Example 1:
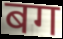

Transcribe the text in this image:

बग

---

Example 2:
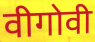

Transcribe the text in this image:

वीगोवी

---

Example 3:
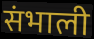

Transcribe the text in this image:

संभाली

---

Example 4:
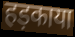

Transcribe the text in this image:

हड़काया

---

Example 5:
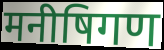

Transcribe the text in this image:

मनीषिगण